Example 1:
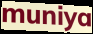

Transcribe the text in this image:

muniya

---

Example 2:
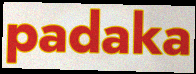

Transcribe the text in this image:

padaka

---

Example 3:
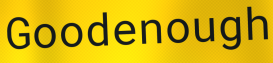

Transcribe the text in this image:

Goodenough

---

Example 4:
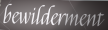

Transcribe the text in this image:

bewilderment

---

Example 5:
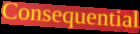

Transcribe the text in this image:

Consequential